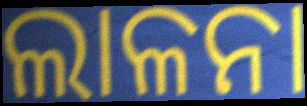
ଲାଳନା